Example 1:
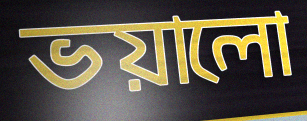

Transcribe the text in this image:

ভয়ালো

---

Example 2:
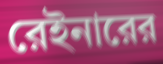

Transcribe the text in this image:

রেইনারের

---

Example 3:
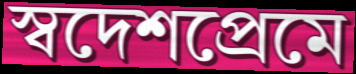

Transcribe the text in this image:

স্বদেশপ্রেমে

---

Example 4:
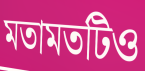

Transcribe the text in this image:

মতামতটিও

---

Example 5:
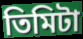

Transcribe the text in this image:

তিমিটা